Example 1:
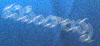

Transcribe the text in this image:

కనిపించాలన్న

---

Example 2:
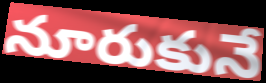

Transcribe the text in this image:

నూరుకునే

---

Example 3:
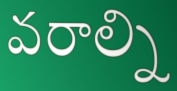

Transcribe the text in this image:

వరాల్ని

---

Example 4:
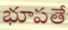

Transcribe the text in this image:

భూపతే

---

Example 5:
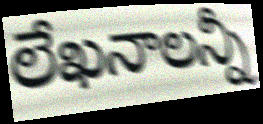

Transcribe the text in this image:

లేఖనాలన్నీ